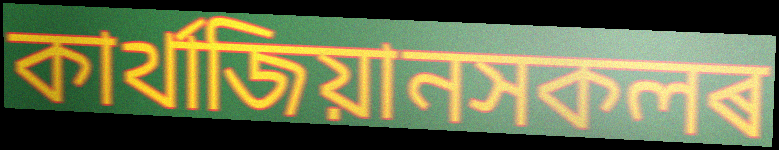
কাৰ্থাজিয়ানসকলৰ